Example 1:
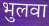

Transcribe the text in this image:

भुलवा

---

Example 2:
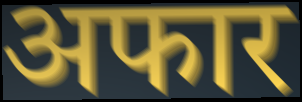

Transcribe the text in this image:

अफार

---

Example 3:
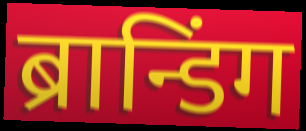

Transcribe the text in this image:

ब्रान्डिंग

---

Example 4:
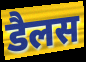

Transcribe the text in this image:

डैलस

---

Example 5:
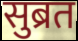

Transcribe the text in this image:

सुब्रत